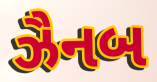
ઝૈનબ